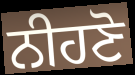
ਨੀਹਣੋ